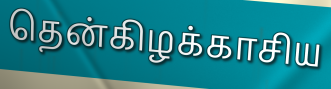
தென்கிழக்காசிய